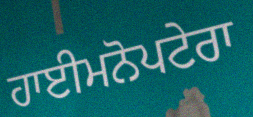
ਹਾਈਮਨੋਪਟੇਰਾ